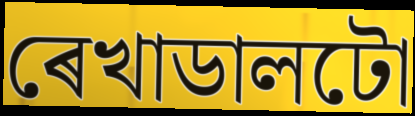
ৰেখাডালটো